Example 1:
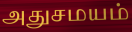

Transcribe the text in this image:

அதுசமயம்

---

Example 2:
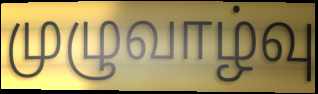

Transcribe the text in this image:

முழுவாழ்வு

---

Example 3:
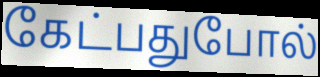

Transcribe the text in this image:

கேட்பதுபோல்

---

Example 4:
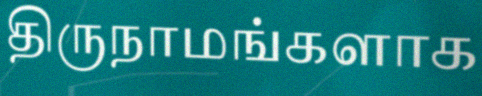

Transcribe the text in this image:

திருநாமங்களாக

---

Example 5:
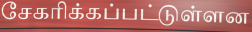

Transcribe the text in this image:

சேகரிக்கப்பட்டுள்ளன